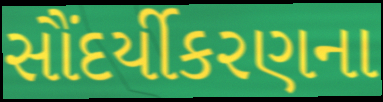
સૌંદર્યીકરણના